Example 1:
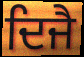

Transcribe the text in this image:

ਦਿਜੈ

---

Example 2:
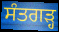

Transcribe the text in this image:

ਸੰਤਗੜ੍ਹ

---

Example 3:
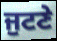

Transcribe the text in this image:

ਜੁਟਣੇ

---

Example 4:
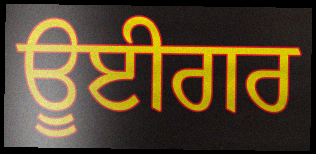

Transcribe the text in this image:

ਊਈਗਰ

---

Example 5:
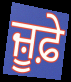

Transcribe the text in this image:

ਜ਼ੂਫ਼ੇ